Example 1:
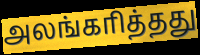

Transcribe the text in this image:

அலங்கரித்தது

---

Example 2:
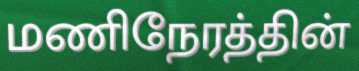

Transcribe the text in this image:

மணிநேரத்தின்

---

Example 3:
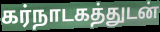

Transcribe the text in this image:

கர்நாடகத்துடன்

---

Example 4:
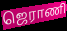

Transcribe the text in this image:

ஜெராணி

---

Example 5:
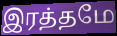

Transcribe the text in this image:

இரத்தமே